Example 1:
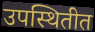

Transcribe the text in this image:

उपस्थितीत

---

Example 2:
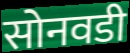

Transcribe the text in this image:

सोनवडी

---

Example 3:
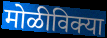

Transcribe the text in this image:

मोळीविक्या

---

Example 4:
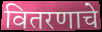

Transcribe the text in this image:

वितरणाचे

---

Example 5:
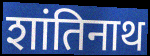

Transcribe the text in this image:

शांतिनाथ